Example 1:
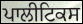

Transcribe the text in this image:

ਪਾਲੀਟਿਕਸ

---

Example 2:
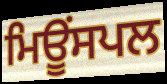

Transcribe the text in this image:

ਮਿਊਂਸਪਲ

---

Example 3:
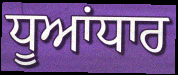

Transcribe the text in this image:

ਧੂਆਂਧਾਰ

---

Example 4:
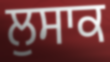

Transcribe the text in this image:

ਲੁਸਾਕ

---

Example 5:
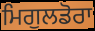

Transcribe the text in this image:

ਮਿਗੁਲਡੋਰਾ